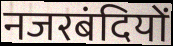
नजरबंदियों